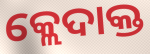
କ୍ଲେଦାକ୍ତ